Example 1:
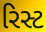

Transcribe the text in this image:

રિસ્ટ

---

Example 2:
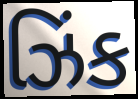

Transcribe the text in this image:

ઝિંક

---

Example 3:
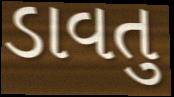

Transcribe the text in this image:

ડાવતુ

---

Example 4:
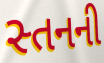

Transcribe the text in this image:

સ્તનની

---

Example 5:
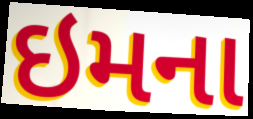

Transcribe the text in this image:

ઇમના